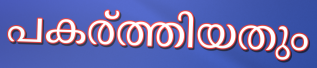
പകര്ത്തിയതും